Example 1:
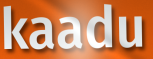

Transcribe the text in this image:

kaadu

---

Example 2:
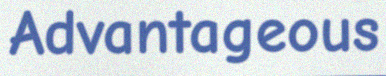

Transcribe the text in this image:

Advantageous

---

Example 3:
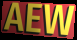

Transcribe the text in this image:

AEW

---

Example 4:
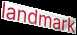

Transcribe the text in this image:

landmark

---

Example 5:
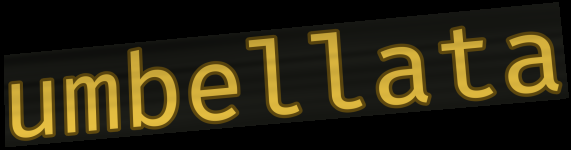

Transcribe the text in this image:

umbellata